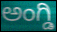
ಅಂಗ್ಡಿ